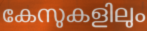
കേസുകളിലും